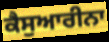
ਕੈਸੁਆਰੀਨਾ